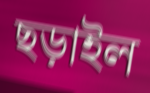
ছড়াইল